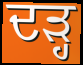
ਦੜ੍ਹ